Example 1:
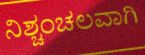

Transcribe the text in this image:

ನಿಶ್ಚಂಚಲವಾಗಿ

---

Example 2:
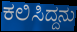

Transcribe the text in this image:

ಕಲಿಸಿದ್ದನು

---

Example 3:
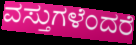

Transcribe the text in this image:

ವಸ್ತುಗಳೆಂದರೆ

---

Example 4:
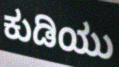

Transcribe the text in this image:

ಕುಡಿಯು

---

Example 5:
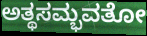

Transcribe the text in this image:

ಅತ್ಥಸಮ್ಭವತೋ